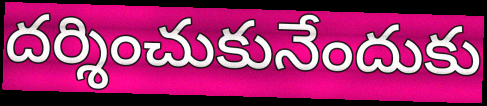
దర్శించుకునేందుకు